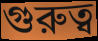
গুরুত্ব